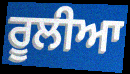
ਰੂਲੀਆ